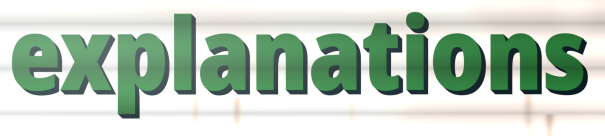
explanations